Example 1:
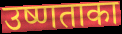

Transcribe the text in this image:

उष्णताका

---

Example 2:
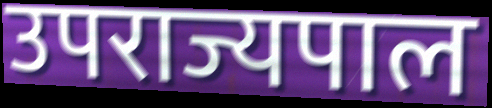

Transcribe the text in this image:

उपराज्यपाल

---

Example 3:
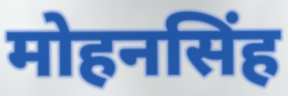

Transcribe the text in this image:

मोहनसिंह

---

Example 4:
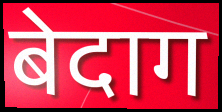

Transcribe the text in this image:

बेदाग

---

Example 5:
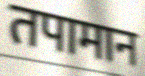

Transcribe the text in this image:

तपामान